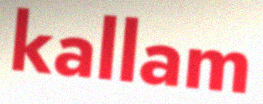
kallam